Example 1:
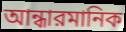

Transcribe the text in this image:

আন্ধারমানিক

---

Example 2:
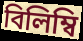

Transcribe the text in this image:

বিলিম্বি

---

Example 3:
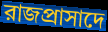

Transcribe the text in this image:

রাজপ্রাসাদে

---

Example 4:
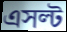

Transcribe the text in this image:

এসল্ট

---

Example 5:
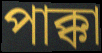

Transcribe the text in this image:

পাক্কা